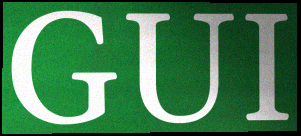
GUI